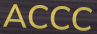
ACCC